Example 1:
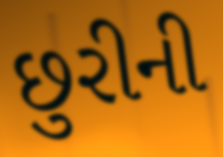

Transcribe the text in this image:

છુરીની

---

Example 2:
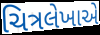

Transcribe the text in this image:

ચિત્રલેખાએ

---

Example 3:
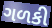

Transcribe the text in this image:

ગળકી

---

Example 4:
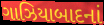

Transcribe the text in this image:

ગાઝિયાબાદનાં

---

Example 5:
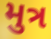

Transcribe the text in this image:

મુત્ર